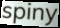
spiny